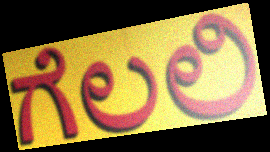
ಗೆಲಲಿ